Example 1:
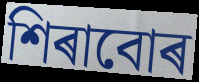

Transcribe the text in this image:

শিৰাবোৰ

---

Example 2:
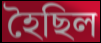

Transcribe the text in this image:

হৈছিল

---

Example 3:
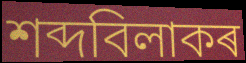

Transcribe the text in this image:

শব্দবিলাকৰ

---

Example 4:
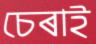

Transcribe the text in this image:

চেৰাই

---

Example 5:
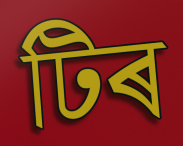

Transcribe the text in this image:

টিৰ